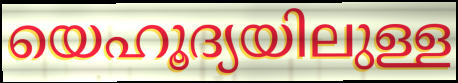
യെഹൂദ്യയിലുള്ള